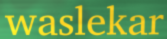
waslekar